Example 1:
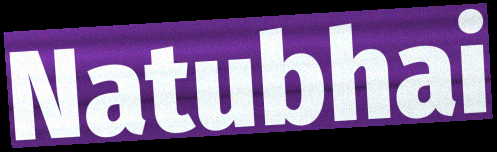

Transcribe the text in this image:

Natubhai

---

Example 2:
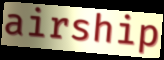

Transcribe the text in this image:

airship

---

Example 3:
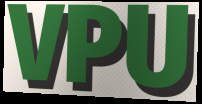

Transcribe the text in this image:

VPU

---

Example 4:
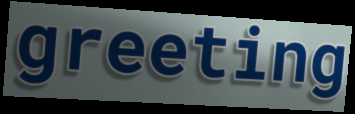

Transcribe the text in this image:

greeting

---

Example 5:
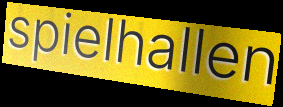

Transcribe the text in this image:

spielhallen